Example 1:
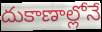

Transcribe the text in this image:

దుకాణాల్లోనే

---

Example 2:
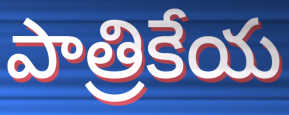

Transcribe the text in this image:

పాత్రికేయ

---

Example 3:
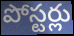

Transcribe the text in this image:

పోస్టర్లు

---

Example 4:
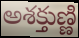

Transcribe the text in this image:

అశక్తుణ్ణి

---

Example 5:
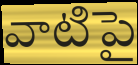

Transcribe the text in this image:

వాటిపై